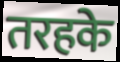
तरहके